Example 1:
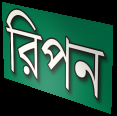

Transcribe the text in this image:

রিপন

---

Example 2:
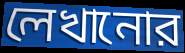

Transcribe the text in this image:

লেখানোর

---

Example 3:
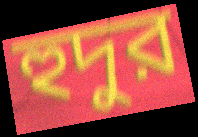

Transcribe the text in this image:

হুদুর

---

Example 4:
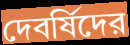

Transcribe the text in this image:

দেবর্ষিদের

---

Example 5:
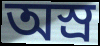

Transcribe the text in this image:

অস্র